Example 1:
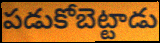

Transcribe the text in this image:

పడుకోబెట్టాడు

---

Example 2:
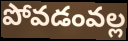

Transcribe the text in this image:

పోవడంవల్ల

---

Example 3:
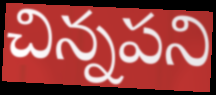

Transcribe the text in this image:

చిన్నపని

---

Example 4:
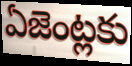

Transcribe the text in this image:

ఏజెంట్లకు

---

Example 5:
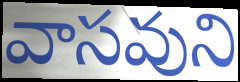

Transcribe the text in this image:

వాసవుని